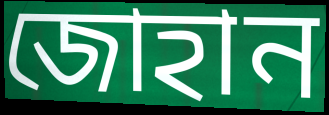
জোহান